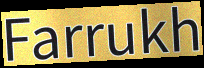
Farrukh